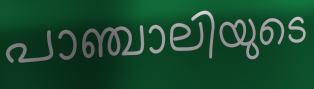
പാഞ്ചാലിയുടെ